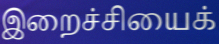
இறைச்சியைக்